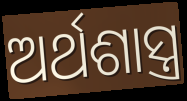
ଅର୍ଥଶାସ୍ତ୍ର